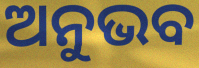
ଅନୁଭବ